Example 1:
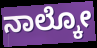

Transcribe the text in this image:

ನಾಲ್ಕೋ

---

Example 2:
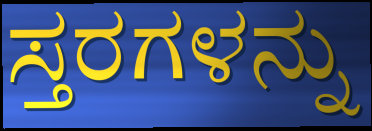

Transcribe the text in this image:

ಸ್ತರಗಳನ್ನು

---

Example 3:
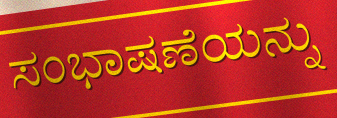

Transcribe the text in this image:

ಸಂಭಾಷಣೆಯನ್ನು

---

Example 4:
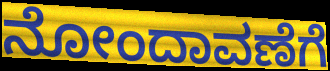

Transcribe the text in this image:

ನೋಂದಾವಣೆಗೆ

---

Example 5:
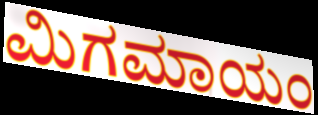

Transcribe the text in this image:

ಮಿಗಮಾಯಂ